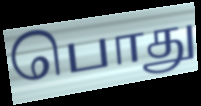
பொது